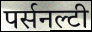
पर्सनल्टी